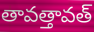
తావత్తావత్